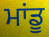
ਮਾਂਡੂ